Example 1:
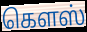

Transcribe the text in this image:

கௌஸ்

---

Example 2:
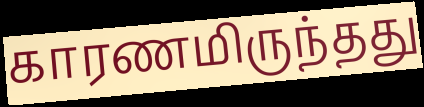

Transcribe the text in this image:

காரணமிருந்தது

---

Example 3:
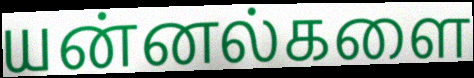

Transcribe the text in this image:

யன்னல்களை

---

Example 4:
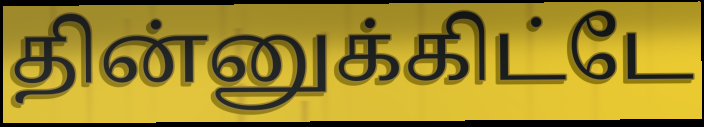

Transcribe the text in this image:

தின்னுக்கிட்டே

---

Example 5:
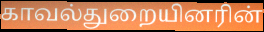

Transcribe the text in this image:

காவல்துறையினரின்